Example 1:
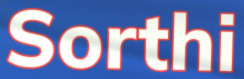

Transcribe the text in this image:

Sorthi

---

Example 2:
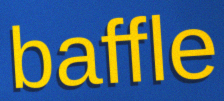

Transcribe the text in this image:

baffle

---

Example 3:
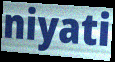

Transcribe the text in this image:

niyati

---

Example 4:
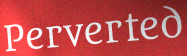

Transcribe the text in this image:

Perverted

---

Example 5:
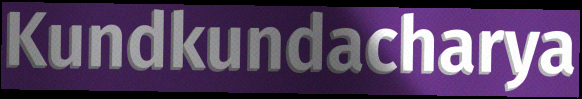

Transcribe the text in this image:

Kundkundacharya